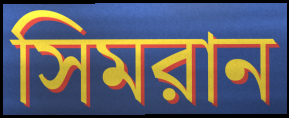
সিমরান